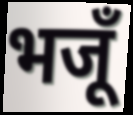
भजूँ